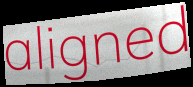
aligned